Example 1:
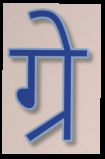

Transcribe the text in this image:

ग्रे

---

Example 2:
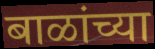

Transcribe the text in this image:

बाळांच्या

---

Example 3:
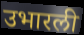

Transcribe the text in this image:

उभारली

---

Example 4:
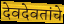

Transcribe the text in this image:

देवदेवतांचे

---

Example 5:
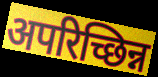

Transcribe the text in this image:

अपरिच्छिन्न